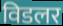
विडलर